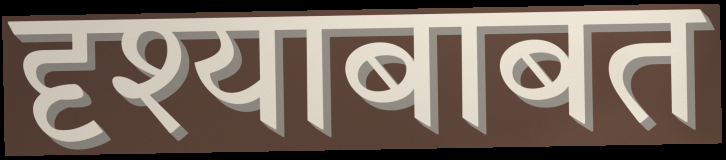
दृश्याबाबत